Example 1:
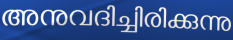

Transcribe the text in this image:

അനുവദിച്ചിരിക്കുന്നു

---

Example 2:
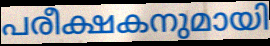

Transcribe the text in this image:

പരീക്ഷകനുമായി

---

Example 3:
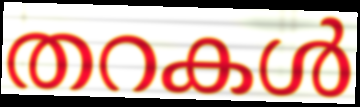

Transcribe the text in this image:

തറകൾ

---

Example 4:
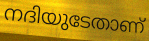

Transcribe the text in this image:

നദിയുടേതാണ്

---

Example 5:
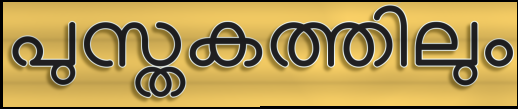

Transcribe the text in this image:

പുസ്തകത്തിലും